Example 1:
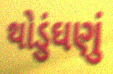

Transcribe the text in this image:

થોડુંઘણું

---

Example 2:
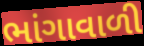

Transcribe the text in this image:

ભાંગાવાળી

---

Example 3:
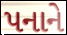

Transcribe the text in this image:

પનાને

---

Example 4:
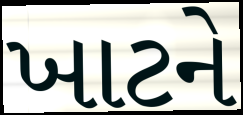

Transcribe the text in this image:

ખાટને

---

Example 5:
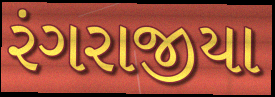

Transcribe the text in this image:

રંગરાજીયા